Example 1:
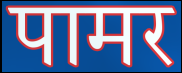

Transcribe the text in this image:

पामर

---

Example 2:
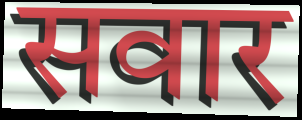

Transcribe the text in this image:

सवार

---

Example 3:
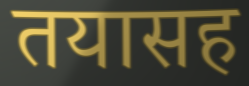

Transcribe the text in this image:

तयासह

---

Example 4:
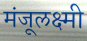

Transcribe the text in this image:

मंजूलक्ष्मी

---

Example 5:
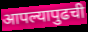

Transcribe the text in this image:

आपल्यापुढची